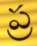
ప్ర